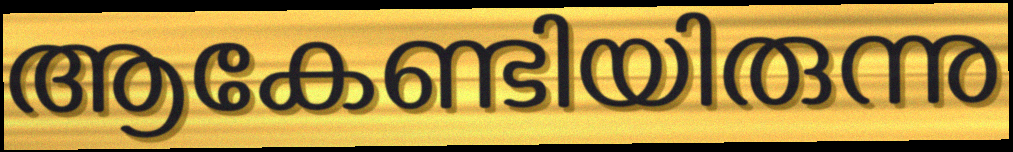
ആകേണ്ടിയിരുന്നു